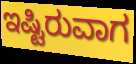
ಇಷ್ಟಿರುವಾಗ